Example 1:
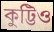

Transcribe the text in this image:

কুট্টিও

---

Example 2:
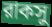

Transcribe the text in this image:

রাকসু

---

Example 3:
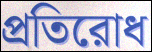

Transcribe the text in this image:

প্রতিরোধ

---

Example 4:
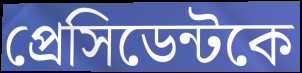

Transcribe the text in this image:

প্রেসিডেন্টকে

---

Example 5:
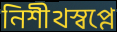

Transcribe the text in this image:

নিশীথস্বপ্নে